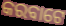
କରବାଟେ